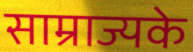
साम्राज्यके